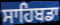
ਸਾਹਿਬਡਾ